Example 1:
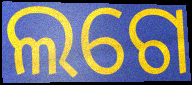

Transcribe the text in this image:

ଲଗେ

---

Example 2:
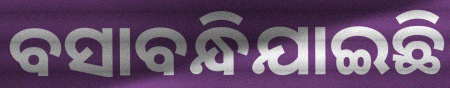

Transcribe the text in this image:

ବସାବନ୍ଧିଯାଇଛି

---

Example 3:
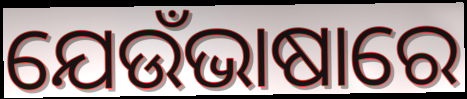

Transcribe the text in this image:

ଯେଉଁଭାଷାରେ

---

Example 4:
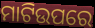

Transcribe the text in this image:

ମାଟିଉପରେ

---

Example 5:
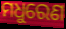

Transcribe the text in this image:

ମଧୁରେଣ